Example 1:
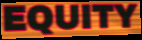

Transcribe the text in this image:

EQUITY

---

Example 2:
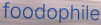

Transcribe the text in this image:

foodophile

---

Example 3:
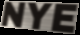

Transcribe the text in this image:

NYE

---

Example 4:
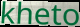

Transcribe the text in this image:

kheto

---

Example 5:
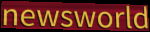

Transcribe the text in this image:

newsworld